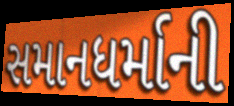
સમાનધર્માની